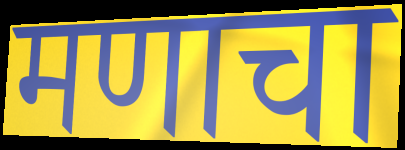
मणाचा